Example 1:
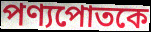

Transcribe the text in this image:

পণ্যপোতকে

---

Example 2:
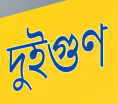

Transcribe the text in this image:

দুইগুণ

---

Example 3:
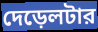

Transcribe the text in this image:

দেড়েলটার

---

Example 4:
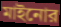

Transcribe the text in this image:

মাইনোর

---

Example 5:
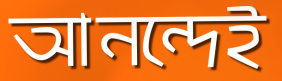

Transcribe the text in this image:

আনন্দেই